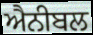
ਐਨੀਬਲ